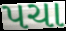
પચા